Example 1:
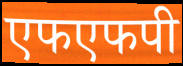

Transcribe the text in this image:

एफएफपी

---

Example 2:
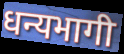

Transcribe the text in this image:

धन्यभागी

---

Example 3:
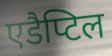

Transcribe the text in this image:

एडैप्टिल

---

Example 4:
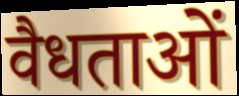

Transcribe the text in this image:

वैधताओं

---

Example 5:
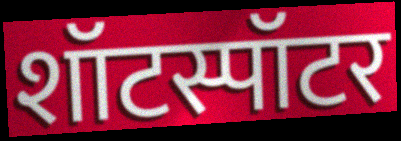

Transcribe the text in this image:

शॉटस्पॉटर